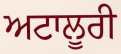
ਅਟਾਲੂਰੀ